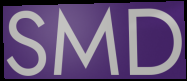
SMD